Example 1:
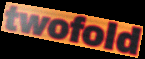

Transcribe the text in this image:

twofold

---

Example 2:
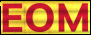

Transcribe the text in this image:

EOM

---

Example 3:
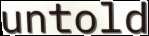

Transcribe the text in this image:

untold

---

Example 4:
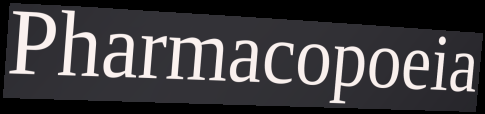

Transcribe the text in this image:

Pharmacopoeia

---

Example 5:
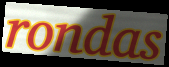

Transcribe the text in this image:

rondas